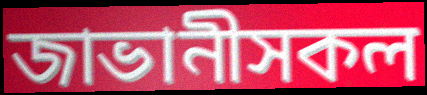
জাভানীসকল